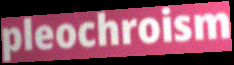
pleochroism